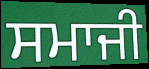
ਸਮਾਜੀ